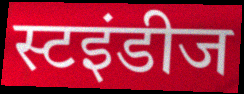
स्टइंडीज